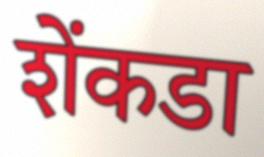
शेंकडा